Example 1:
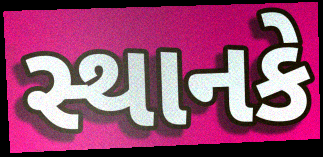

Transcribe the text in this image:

સ્થાનકે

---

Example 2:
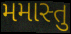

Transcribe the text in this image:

મમાસ્તુ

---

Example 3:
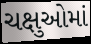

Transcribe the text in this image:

ચક્ષુઓમાં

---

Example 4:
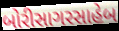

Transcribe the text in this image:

બોરીસાગરસાહેબ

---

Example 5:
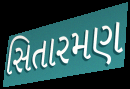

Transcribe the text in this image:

સિતારમણ